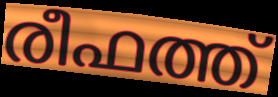
രീഫത്ത്